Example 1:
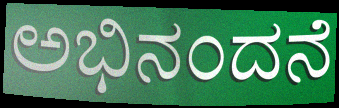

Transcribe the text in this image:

ಅಭಿನಂದನೆ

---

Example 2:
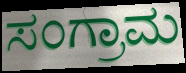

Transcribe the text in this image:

ಸಂಗ್ರಾಮ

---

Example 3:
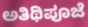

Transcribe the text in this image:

ಅತಿಥಿಪೂಜೆ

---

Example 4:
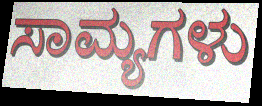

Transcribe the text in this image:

ಸಾಮ್ಯಗಳು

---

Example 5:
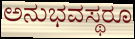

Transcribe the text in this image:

ಅನುಭವಸ್ಥರೂ